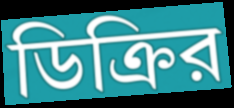
ডিক্রির